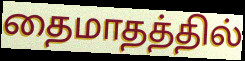
தைமாதத்தில்